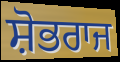
ਸ਼ੋਭਰਾਜ